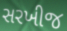
સરખીજ